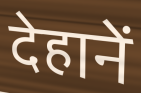
देहानें